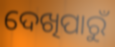
ଦେଖିପାରୁଁ